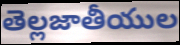
తెల్లజాతీయుల